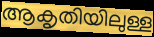
ആകൃതിയിലുള്ള